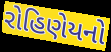
રોહિણેયનો